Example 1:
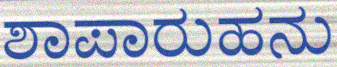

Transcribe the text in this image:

ಶಾಪಾರುಹನು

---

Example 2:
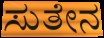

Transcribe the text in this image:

ಸುತೇನ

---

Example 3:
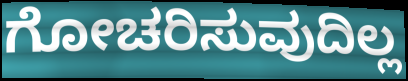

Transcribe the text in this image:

ಗೋಚರಿಸುವುದಿಲ್ಲ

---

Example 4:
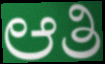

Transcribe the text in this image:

ಆತಿ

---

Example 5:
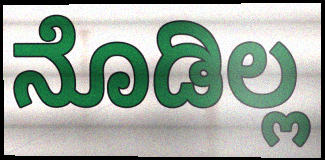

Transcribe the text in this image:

ನೊಡಿಲ್ಲ